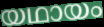
യഥായം